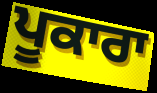
ਪੂਕਾਰਾ